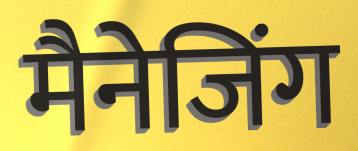
मैनेजिंग